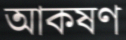
আকষণ